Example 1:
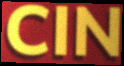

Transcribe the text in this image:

CIN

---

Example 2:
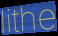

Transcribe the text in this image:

lithe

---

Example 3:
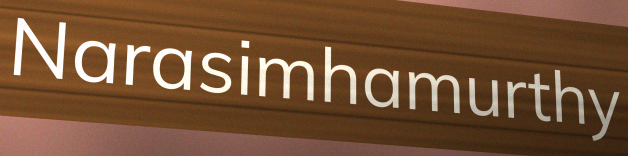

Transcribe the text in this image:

Narasimhamurthy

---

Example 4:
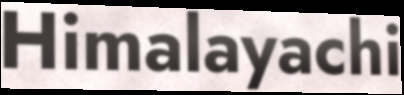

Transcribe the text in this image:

Himalayachi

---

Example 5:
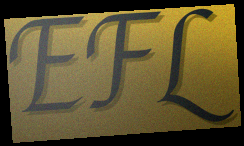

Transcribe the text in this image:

EFL